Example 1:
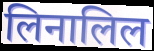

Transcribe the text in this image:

लिनालिल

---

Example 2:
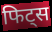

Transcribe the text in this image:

फिट्स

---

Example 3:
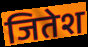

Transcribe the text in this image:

जितेश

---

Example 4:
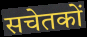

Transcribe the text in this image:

सचेतकों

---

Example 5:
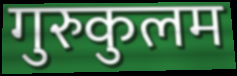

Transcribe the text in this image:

गुरुकुलम